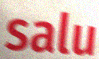
salu